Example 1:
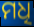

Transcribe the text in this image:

ମଧି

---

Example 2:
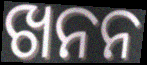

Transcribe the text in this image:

ଖନନ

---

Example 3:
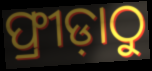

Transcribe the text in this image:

ଫ୍ରୀଡ଼ାଠୁ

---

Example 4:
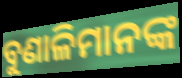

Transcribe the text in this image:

ବୁଣାଳିମାନଙ୍କ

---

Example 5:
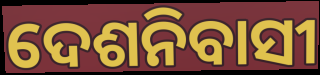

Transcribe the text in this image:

ଦେଶନିବାସୀ